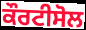
ਕੌਰਟੀਸੋਲ